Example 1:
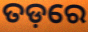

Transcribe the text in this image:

ତଡ଼ରେ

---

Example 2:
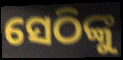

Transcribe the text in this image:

ସେଠିଙ୍କୁ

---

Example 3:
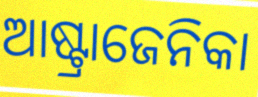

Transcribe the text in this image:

ଆଷ୍ଟ୍ରାଜେନିକା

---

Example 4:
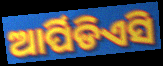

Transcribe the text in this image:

ଆର୍ପିଡିଏସି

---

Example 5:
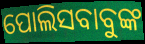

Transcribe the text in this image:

ପୋଲିସବାବୁଙ୍କ